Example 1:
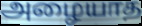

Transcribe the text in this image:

அழையாத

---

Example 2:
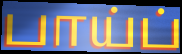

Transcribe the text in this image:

பாய்ப்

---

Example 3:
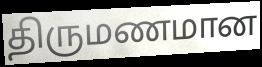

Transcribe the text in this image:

திருமணமான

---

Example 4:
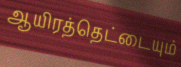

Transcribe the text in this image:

ஆயிரத்தெட்டையும்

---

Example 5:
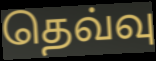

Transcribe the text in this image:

தெவ்வு